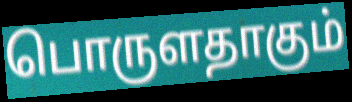
பொருளதாகும்